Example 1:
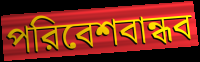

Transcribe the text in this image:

পরিবেশবান্ধব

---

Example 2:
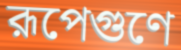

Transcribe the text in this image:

রূপেগুণে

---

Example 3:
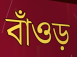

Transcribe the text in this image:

বাঁওড়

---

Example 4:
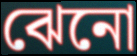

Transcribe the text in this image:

ঝেনো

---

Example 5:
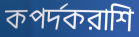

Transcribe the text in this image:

কপর্দকরাশি